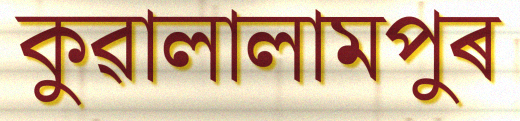
কুৱালালামপুৰ